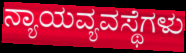
ನ್ಯಾಯವ್ಯವಸ್ಥೆಗಳು